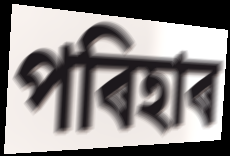
পৰিহাৰ